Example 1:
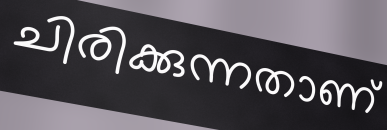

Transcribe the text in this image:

ചിരിക്കുന്നതാണ്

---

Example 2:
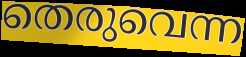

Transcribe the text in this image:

തെരുവെന്ന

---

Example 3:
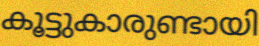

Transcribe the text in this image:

കൂട്ടുകാരുണ്ടായി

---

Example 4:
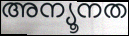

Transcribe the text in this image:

അന്യൂനത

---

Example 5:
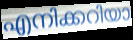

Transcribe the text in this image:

എനിക്കറിയാ